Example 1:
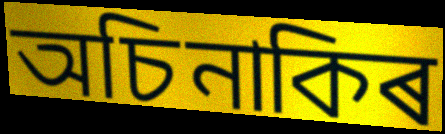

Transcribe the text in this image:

অচিনাকিৰ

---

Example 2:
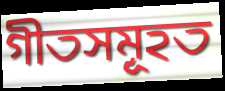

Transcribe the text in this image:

গীতসমূহত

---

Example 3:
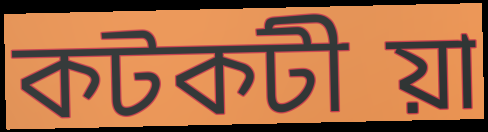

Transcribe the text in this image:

কটকটীয়া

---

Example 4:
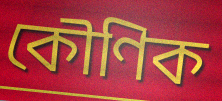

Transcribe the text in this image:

কৌণিক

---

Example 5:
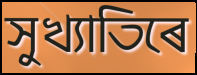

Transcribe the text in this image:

সুখ্যাতিৰে